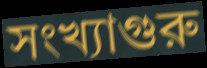
সংখ্যাগুরু